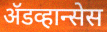
ॲडव्हान्सेस